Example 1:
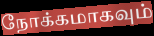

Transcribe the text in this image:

நோக்கமாகவும்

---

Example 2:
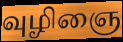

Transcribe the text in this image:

வுழிஞை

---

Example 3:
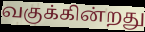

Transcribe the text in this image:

வகுக்கின்றது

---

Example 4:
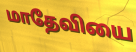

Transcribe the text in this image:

மாதேவியை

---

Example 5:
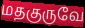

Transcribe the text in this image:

மதகுருவே